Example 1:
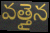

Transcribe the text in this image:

వత్తైన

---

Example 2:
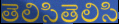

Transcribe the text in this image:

తెలిసితెలిసి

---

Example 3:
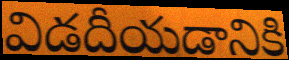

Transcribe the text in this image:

విడదీయడానికి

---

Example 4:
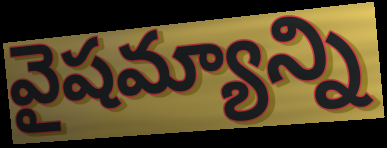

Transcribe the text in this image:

వైషమ్యాన్ని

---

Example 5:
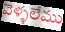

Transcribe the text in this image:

వెళ్ళలేము